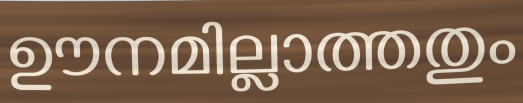
ഊനമില്ലാത്തതും